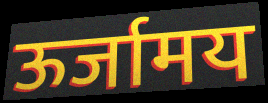
ऊर्जामय